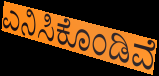
ಎನಿಸಿಕೊಂಡಿವೆ